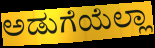
ಅಡುಗೆಯೆಲ್ಲಾ